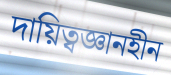
দায়িত্বজ্ঞানহীন